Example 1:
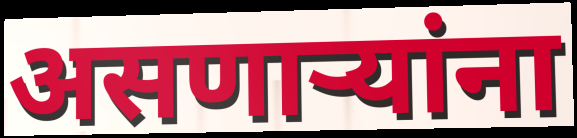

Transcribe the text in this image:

असणाऱ्यांना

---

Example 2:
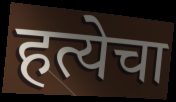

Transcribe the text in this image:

हत्येचा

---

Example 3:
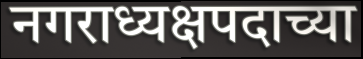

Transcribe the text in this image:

नगराध्यक्षपदाच्या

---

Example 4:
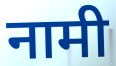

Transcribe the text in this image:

नामी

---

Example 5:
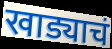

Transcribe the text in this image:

खाड्याचं